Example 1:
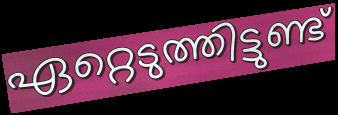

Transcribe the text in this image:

ഏറ്റെടുത്തിട്ടുണ്ട്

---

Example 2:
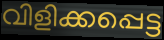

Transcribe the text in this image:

വിളിക്കപ്പെട്ട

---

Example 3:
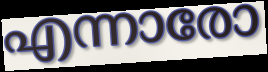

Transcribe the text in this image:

എന്നാരോ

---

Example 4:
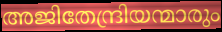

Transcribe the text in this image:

അജിതേന്ദ്രിയന്മാരും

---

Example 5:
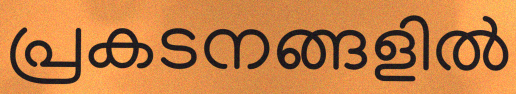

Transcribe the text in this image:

പ്രകടനങ്ങളിൽ